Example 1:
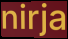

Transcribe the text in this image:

nirja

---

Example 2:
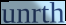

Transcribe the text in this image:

unrth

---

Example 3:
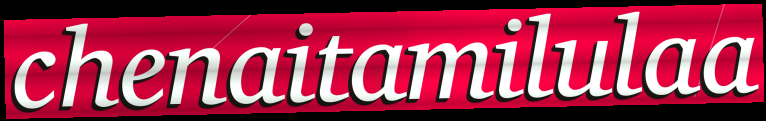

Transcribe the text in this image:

chenaitamilulaa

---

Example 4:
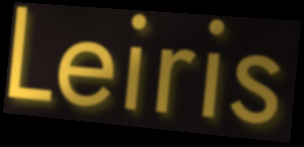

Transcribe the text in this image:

Leiris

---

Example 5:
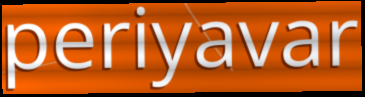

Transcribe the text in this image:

periyavar